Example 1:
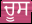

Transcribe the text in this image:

ਚੂਸ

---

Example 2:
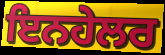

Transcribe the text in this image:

ਇਨਹੇਲਰ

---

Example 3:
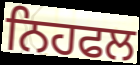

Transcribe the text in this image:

ਨਿਹਫਲ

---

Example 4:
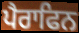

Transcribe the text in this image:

ਪੈਰਾਫਿਨ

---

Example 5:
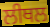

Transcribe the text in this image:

ਲੀਥਲ